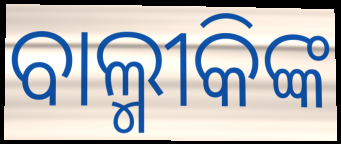
ବାଲ୍ମୀକିଙ୍କ